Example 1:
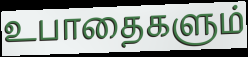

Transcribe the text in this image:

உபாதைகளும்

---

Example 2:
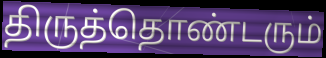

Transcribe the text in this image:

திருத்தொண்டரும்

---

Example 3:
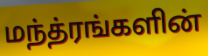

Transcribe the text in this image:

மந்த்ரங்களின்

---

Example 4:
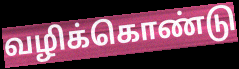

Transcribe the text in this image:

வழிக்கொண்டு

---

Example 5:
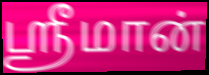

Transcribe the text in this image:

ஸ்ரீமான்